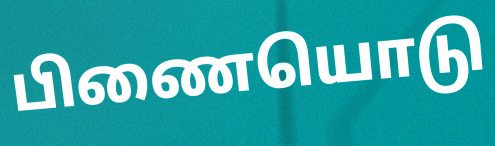
பிணையொடு